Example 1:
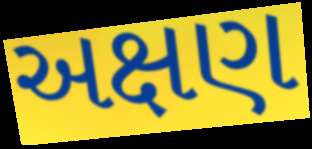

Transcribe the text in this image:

અક્ષણ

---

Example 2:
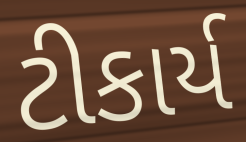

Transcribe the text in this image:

ટીકાર્ય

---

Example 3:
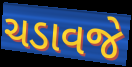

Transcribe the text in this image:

ચડાવજે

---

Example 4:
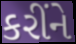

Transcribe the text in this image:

કરીંને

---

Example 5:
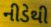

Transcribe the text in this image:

નીડેથી